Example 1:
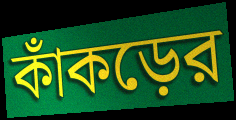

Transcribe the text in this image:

কাঁকড়ের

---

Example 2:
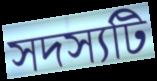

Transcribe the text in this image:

সদস্যটি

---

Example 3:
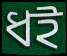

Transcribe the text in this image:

ধই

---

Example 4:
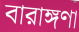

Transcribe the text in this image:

বারাঙ্গণা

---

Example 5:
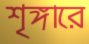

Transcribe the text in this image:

শৃঙ্গারে